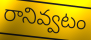
రానివ్వటం